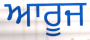
ਆਰੂਜ